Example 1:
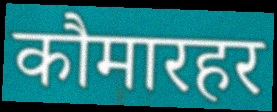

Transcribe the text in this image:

कौमारहर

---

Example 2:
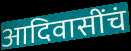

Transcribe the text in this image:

आदिवासींचं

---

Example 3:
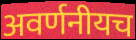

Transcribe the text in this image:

अवर्णनीयच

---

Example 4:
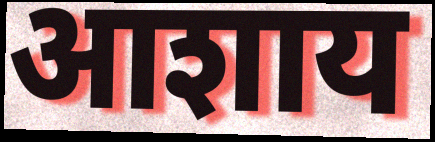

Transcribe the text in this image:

आशाय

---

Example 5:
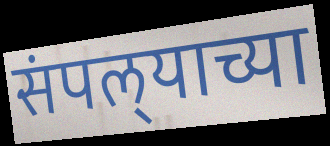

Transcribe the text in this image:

संपल्याच्या